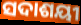
ସଦାଶୟୀ